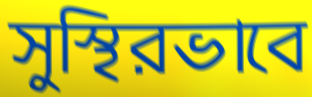
সুস্থিরভাবে